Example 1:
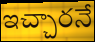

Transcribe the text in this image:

ఇచ్చారనే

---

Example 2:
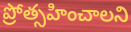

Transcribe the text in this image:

ప్రోత్సహించాలని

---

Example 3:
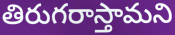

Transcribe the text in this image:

తిరుగరాస్తామని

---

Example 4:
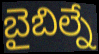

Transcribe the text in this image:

బైబిల్నే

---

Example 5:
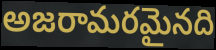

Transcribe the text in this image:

అజరామరమైనది